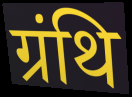
ग्रंथि